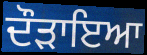
ਦੌੜਾਇਆ